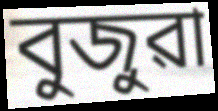
বুজুৱা